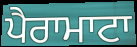
ਪੈਰਾਮਾਟਾ